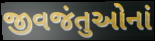
જીવજંતુઓનાં